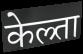
केल्ता